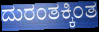
ದುರಂತಕ್ಕಿಂತ